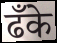
ढँके